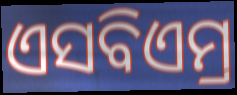
ଏସବିଏମ୍ର